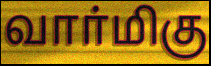
வார்மிகு